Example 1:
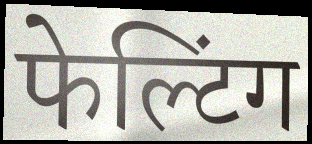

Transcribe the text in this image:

फेल्टिंग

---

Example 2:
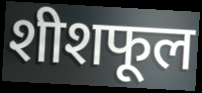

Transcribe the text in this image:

शीशफूल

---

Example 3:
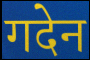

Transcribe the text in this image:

गदेन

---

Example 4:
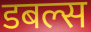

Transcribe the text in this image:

डबल्‍स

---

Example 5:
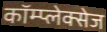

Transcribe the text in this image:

कॉम्प्लेक्सेज